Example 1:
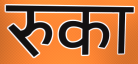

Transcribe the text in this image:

रुका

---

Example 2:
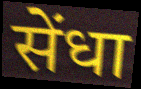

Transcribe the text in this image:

सेंधा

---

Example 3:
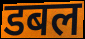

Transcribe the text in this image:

डबल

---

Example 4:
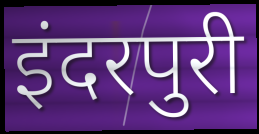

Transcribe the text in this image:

इंदरपुरी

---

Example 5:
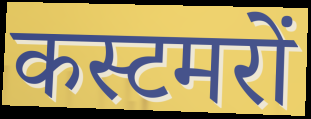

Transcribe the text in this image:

कस्टमरों